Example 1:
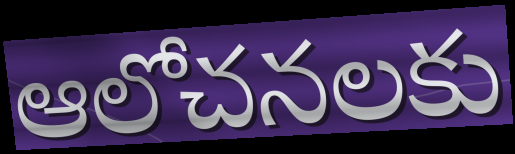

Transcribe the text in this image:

ఆలోచనలకు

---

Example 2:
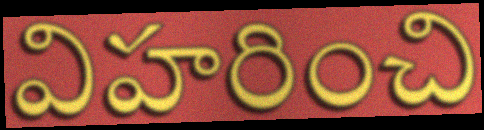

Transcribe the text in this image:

విహరించి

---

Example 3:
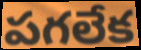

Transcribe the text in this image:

పగలేక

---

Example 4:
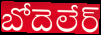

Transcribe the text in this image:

బోదెలేర్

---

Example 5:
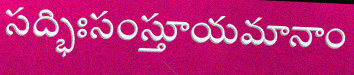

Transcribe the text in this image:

సద్భిఃసంస్తూయమానాం